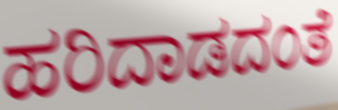
ಹರಿದಾಡದಂತೆ